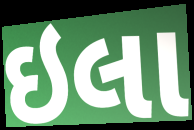
ઇલા